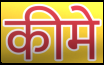
कीमे